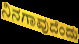
ನಿನಗಾವುದೆಂದು